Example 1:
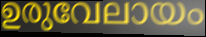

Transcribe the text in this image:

ഉരുവേലായം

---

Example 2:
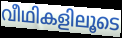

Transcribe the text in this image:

വീഥികളിലൂടെ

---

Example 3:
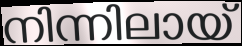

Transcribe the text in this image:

നിന്നിലായ്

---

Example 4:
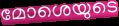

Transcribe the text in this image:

മോശെയുടെ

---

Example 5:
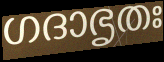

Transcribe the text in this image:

ഗദാഭൃതഃ